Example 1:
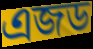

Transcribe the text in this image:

এজড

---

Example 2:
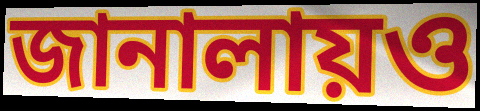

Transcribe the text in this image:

জানালায়ও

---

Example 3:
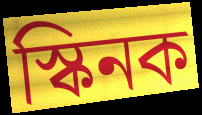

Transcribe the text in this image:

স্কিনক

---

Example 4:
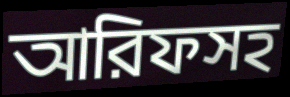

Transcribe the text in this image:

আরিফসহ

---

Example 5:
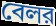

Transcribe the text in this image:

বেলর